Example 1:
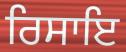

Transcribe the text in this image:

ਰਿਸਾਇ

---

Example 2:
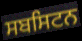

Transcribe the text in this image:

ਸਬਸਿਟਨ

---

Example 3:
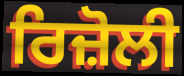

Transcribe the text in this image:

ਰਿਜ਼ੋਲੀ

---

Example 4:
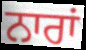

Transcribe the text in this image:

ਨਾਰਾਂ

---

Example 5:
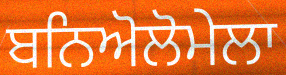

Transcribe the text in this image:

ਬਨਿਅੋਲੋਮੇਲਾ